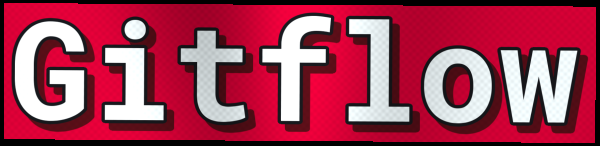
Gitflow